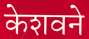
केशवने